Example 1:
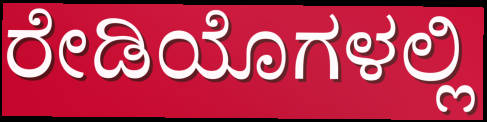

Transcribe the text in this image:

ರೇಡಿಯೊಗಳಲ್ಲಿ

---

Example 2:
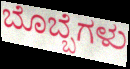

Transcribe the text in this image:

ಬೊಬ್ಬೆಗಳು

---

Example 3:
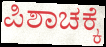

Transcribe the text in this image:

ಪಿಶಾಚಕ್ಕೆ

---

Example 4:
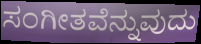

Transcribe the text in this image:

ಸಂಗೀತವೆನ್ನುವುದು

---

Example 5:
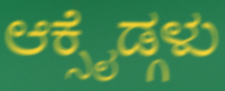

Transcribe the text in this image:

ಆಕ್ಸೈಡ್ಗಳು